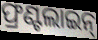
ଫ୍ରଣ୍ଟଲାଇନ୍